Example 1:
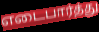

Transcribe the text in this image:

எடைபார்த்து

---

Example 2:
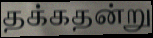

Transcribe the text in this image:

தக்கதன்று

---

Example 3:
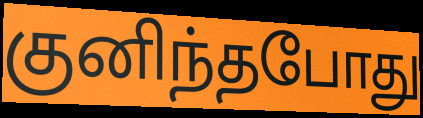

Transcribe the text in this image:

குனிந்தபோது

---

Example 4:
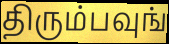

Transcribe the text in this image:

திரும்பவுங்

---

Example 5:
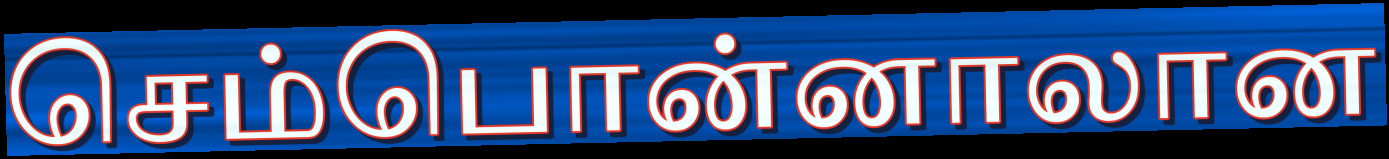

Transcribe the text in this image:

செம்பொன்னாலான